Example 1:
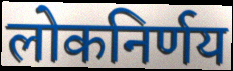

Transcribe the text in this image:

लोकनिर्णय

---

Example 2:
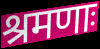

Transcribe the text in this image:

श्रमणाः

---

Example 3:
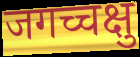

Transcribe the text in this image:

जगच्चक्षु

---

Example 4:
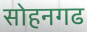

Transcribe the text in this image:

सोहनगढ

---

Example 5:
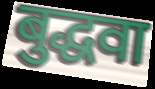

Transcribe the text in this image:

बुद्धवा